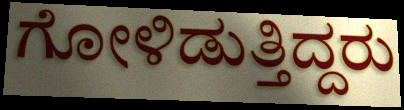
ಗೋಳಿಡುತ್ತಿದ್ದರು